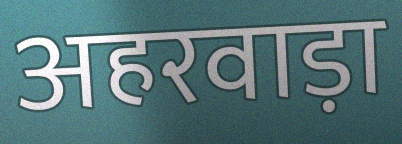
अहरवाड़ा